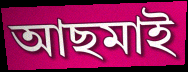
আছমাই